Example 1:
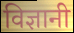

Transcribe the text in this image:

विज्ञानी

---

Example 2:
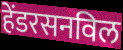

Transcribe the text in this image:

हेंडरसनविल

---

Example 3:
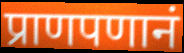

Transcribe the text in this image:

प्राणपणानं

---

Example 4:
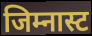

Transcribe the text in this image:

जिम्नास्ट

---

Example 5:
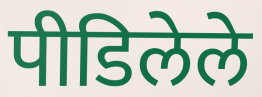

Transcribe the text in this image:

पीडिलेले